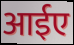
आईए